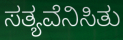
ಸತ್ಯವೆನಿಸಿತು